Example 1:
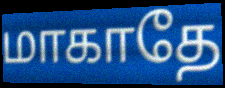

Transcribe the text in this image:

மாகாதே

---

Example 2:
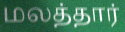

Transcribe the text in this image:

மலத்தார்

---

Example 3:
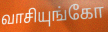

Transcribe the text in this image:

வாசியுங்கோ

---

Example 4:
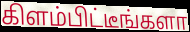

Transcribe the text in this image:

கிளம்பிட்டீங்களா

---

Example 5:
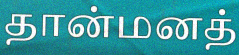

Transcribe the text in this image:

தான்மனத்